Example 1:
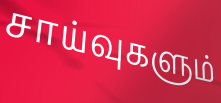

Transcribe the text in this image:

சாய்வுகளும்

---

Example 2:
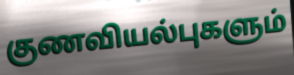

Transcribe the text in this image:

குணவியல்புகளும்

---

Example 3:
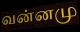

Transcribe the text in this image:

வன்னமு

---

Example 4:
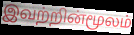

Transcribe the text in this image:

இவற்றின்மூலம்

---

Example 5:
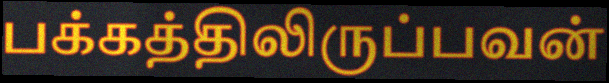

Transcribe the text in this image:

பக்கத்திலிருப்பவன்